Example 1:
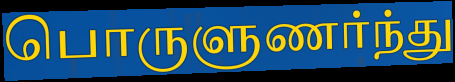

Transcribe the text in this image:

பொருளுணர்ந்து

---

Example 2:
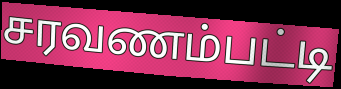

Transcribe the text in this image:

சரவணம்பட்டி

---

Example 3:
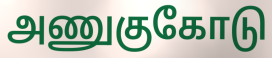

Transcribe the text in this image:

அணுகுகோடு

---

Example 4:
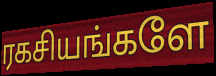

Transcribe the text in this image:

ரகசியங்களே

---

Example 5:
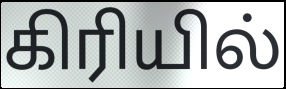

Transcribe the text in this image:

கிரியில்